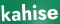
kahise